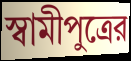
স্বামীপুত্রের